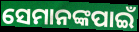
ସେମାନଙ୍କପାଇଁ